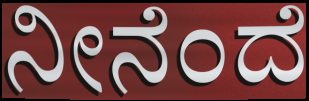
ನೀನೆಂದೆ